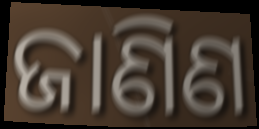
ଜାଣିଣ